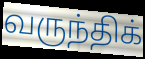
வருந்திக்